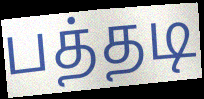
பத்தடி